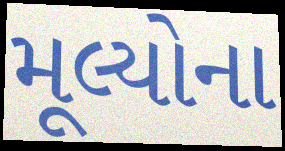
મૂલ્યોના